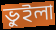
ভুইলা